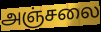
அஞ்சலை